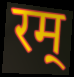
रम्